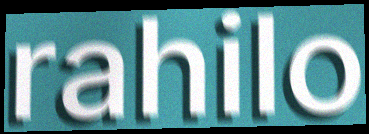
rahilo